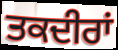
ਤਕਦੀਰਾਂ